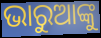
ଭାରୁଆଙ୍କୁ